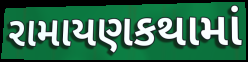
રામાયણકથામાં